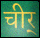
चीर्